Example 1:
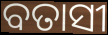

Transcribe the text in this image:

ବତାସୀ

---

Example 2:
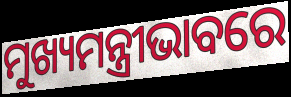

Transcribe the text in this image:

ମୁଖ୍ୟମନ୍ତ୍ରୀଭାବରେ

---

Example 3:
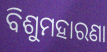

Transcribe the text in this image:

ବିଶୁମହାରଣା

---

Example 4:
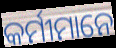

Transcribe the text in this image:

କର୍ମୀମାନେ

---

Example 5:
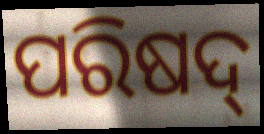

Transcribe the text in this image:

ପରିଷଦ୍